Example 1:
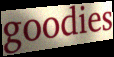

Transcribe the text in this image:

goodies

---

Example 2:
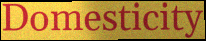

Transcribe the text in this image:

Domesticity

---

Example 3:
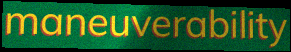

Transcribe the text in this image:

maneuverability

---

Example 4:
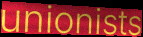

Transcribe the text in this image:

unionists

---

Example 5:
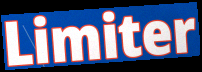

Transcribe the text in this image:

Limiter